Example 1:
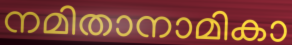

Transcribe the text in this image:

നമിതാനാമികാ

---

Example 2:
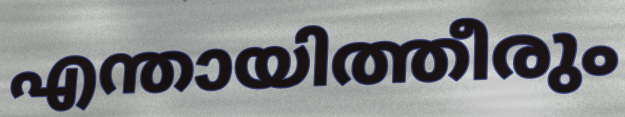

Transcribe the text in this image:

എന്തായിത്തീരും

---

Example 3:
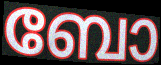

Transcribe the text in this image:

ബോ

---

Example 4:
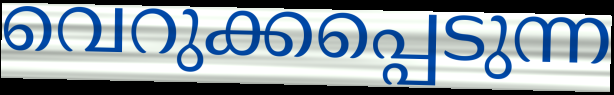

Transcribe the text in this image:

വെറുക്കപ്പെടുന്ന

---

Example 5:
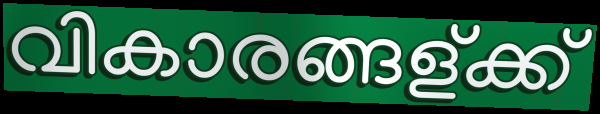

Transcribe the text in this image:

വികാരങ്ങള്ക്ക്